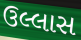
ઉલ્લાસ